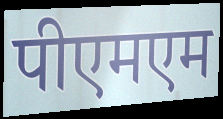
पीएमएम